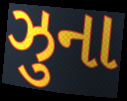
ઝુના